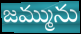
జమ్మును